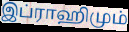
இப்ராஹிமும்